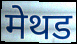
मेथड